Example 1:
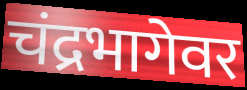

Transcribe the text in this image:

चंद्रभागेवर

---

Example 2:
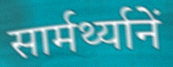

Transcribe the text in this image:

सार्मर्थ्यानें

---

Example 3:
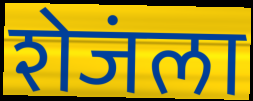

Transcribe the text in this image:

शेजंला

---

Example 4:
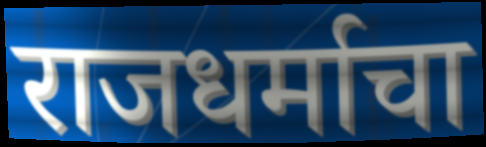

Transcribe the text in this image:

राजधर्माचा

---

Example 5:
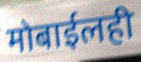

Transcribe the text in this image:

मोबाईलही